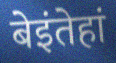
बेइंतेहां